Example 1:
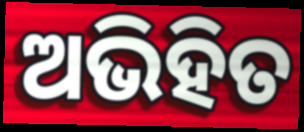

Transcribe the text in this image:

ଅଭିହିତ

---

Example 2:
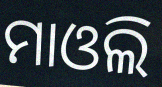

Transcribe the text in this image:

ମାଓଲି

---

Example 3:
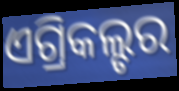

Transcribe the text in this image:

ଏଗ୍ରିକଲ୍ଚର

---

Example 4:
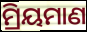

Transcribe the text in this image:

ମ୍ରିୟମାଣ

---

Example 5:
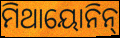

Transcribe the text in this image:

ମିଥାୟୋନିନ୍